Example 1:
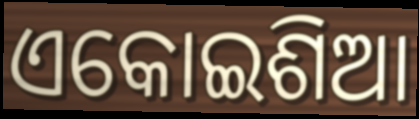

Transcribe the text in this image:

ଏକୋଇଶିଆ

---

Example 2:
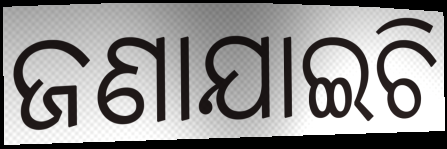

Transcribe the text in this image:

ଜଣାଯାଇଚି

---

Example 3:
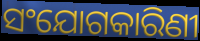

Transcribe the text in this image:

ସଂଯୋଗକାରିଣୀ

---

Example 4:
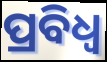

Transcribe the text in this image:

ପ୍ରବିଧ୍ଵ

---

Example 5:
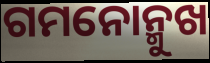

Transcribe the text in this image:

ଗମନୋନ୍ମୁଖ